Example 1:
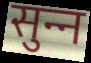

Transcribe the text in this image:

सुन्‍न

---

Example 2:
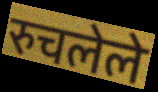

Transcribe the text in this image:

रुचलेले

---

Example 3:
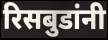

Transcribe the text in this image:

रिसबुडांनी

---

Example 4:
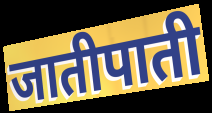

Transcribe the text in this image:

जातीपाती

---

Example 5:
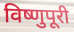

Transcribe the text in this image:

विष्णुपूरी